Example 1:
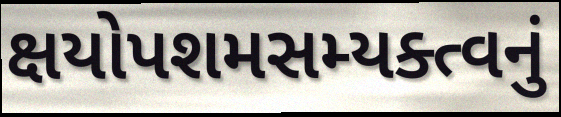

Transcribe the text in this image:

ક્ષયોપશમસમ્યક્ત્વનું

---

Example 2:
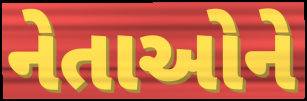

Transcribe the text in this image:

નેતાઓને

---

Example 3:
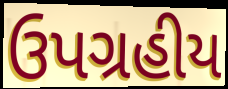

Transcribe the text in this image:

ઉપગ્રહીય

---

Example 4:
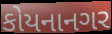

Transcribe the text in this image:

કોયનાનગર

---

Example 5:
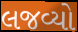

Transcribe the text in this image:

લજવ્યો